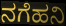
ನಗೆಹನಿ